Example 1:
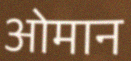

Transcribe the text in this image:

ओमान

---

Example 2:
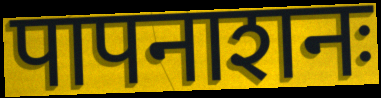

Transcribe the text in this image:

पापनाशनः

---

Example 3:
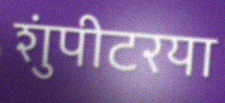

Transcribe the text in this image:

शुंपीटरया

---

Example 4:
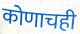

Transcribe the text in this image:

कोणाचही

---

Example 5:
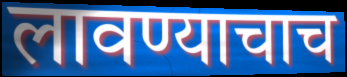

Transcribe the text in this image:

लावण्याचाच